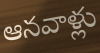
ఆనవాళ్లు